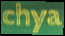
chya